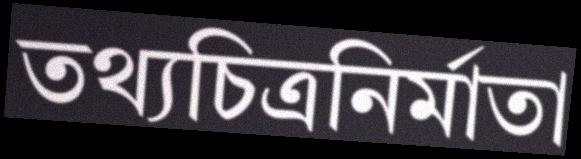
তথ্যচিত্রনির্মাতা